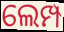
ଲେମ୍ପ